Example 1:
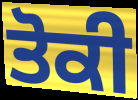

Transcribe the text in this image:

ਤੋਕੀ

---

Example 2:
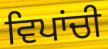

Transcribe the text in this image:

ਵਿਪਾਂਚੀ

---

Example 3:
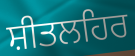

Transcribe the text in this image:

ਸ਼ੀਤਲਹਿਰ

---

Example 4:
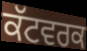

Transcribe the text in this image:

ਕੱਟਵਰਕ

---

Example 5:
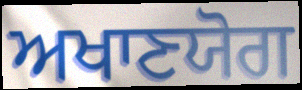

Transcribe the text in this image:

ਅਖਾਣਯੋਗ